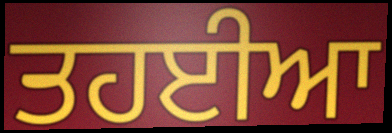
ਤਹਈਆ